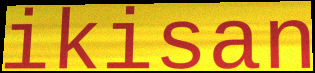
ikisan